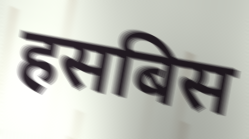
हसबिस